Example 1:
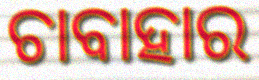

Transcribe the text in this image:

ଚାବାହାର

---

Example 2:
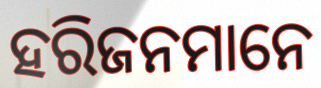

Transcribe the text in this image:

ହରିଜନମାନେ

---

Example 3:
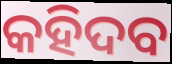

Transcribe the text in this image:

କହିଦବ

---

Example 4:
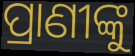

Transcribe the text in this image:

ପ୍ରାଣୀଙ୍କୁ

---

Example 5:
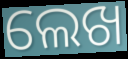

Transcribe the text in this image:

ଲେଖ